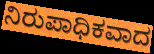
ನಿರುಪಾಧಿಕವಾದ